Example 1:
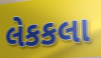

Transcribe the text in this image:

લેકકલા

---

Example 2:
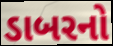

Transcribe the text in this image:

ડાબરનો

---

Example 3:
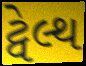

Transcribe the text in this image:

ટ્વેલ્થ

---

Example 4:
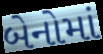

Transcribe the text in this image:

બેનોમાં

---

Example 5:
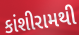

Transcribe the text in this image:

કાંશીરામથી